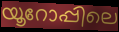
യൂറോപ്പിലെ